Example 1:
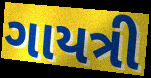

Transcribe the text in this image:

ગાયત્રી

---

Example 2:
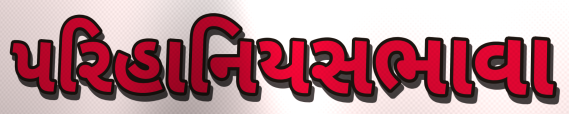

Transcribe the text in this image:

પરિહાનિયસભાવા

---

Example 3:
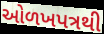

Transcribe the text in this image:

ઓળખપત્રથી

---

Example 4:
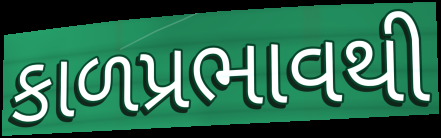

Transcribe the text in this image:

કાળપ્રભાવથી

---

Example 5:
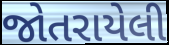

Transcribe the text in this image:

જોતરાયેલી